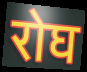
रोघ